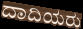
ದಾದಿಯರು